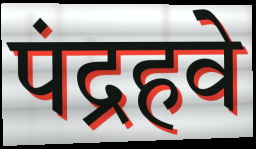
पंद्रहवे